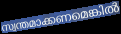
സ്വന്തമാക്കണമെങ്കിൽ